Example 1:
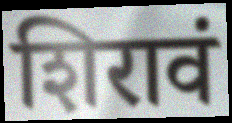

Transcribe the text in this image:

शिरावं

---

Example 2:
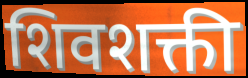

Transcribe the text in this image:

शिवशक्ती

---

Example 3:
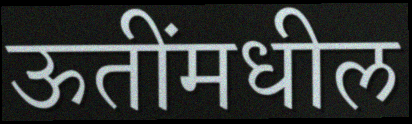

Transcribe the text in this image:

ऊतींमधील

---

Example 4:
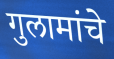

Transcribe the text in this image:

गुलामांचे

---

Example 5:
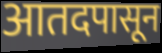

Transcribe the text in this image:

आतदपासून